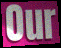
Our